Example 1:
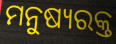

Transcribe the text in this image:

ମନୁଷ୍ଯରକ୍ତ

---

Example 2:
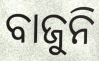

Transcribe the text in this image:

ବାଜୁନି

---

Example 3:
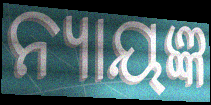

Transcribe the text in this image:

ନ୍ୟାୟଜ୍ଞ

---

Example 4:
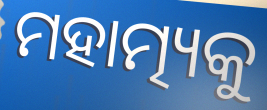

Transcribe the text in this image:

ମହାତ୍ମ୍ୟକୁ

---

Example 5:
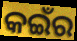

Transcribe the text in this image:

କଇଁର